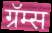
ग्रॅम्स